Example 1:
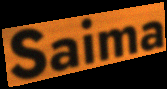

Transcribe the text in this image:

Saima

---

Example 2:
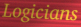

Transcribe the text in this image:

Logicians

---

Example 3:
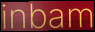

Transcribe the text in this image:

inbam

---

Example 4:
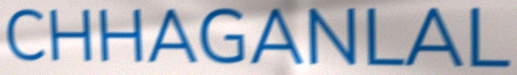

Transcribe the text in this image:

CHHAGANLAL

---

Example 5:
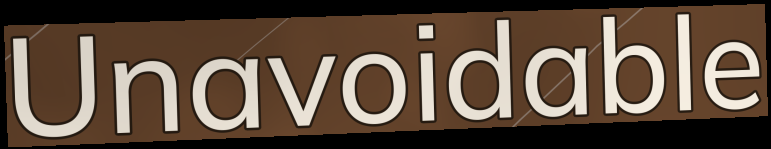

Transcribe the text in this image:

Unavoidable